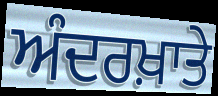
ਅੰਦਰਖ਼ਾਤੇ